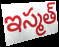
ఇస్మత్